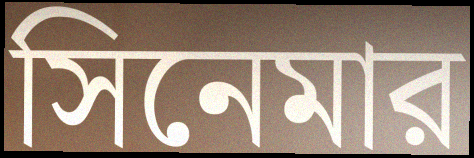
সিনেমার